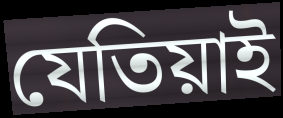
যেতিয়াই